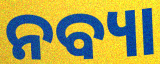
ନବ୍ୟା